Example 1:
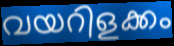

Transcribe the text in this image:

വയറിളക്കം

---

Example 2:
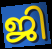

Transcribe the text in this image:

ജി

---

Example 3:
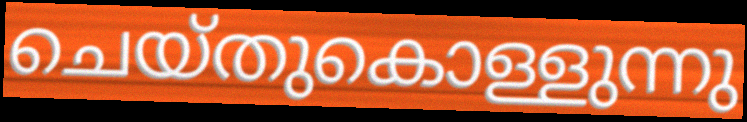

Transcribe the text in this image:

ചെയ്തുകൊള്ളുന്നു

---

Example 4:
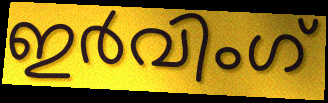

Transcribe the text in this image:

ഇർവിംഗ്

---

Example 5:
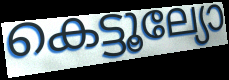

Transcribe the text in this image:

കെട്ടൂല്യോ